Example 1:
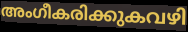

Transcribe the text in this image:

അംഗീകരിക്കുകവഴി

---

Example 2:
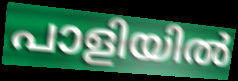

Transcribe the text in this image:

പാളിയിൽ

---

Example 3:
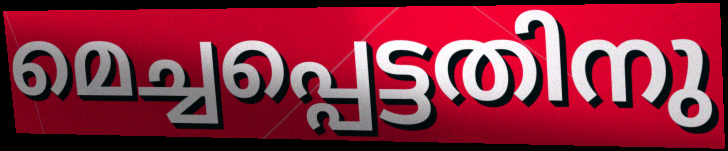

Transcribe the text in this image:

മെച്ചപ്പെട്ടതിനു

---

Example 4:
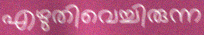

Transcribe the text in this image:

എഴുതിവെച്ചിരുന്ന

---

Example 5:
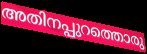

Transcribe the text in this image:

അതിനപ്പുറത്തൊരു